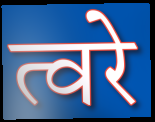
त्वरे